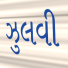
ઝુલવી